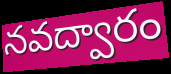
నవద్వారం